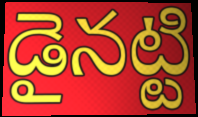
డైనట్టి